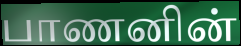
பாணனின்